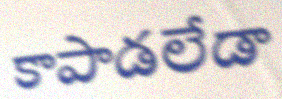
కాపాడలేడా